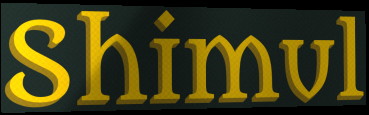
Shimul